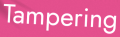
Tampering